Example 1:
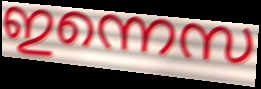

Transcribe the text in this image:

ഇന്നെസ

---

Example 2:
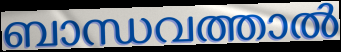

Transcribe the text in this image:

ബാന്ധവത്താൽ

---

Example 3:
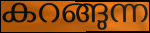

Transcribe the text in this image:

കറങ്ങുന്ന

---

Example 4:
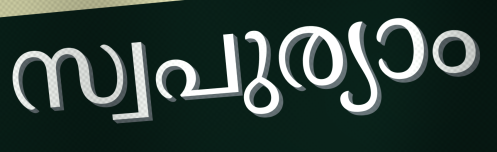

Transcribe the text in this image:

സ്വപുര്യാം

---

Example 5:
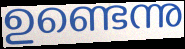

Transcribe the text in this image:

ഉണ്ടെന്നു